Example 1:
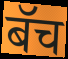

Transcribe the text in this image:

बॅच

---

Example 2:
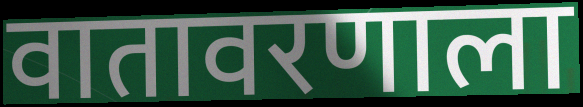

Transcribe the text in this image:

वातावरणाला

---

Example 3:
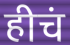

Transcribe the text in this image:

हीचं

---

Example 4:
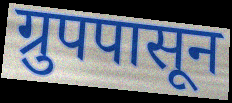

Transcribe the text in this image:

ग्रुपपासून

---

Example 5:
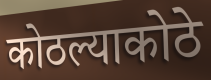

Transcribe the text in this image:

कोठल्याकोठे